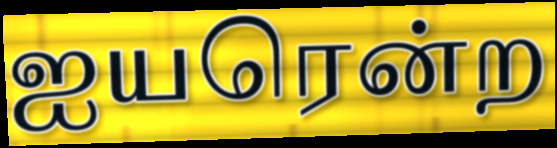
ஐயரென்ற